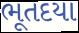
ભૂતદયા